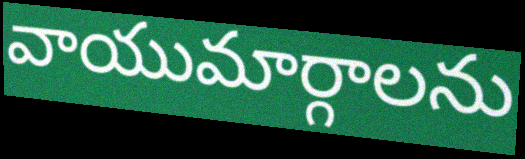
వాయుమార్గాలను